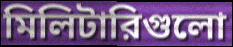
মিলিটারিগুলো